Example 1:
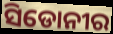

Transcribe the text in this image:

ସିଡୋନୀର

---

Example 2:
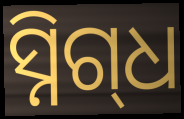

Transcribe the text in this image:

ସ୍ନିଗ୍‍ଧ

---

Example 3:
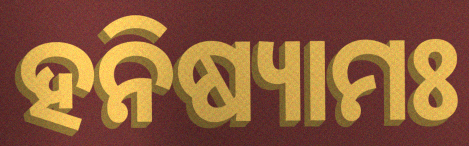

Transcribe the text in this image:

ହନିଷ୍ୟାମଃ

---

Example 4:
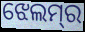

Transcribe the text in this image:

ଝେଲମ୍‌ର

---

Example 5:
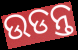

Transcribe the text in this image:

ଉଡନ୍ତ